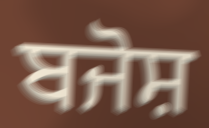
ਬਜੋਸ਼